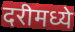
दरीमध्ये